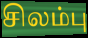
சிலம்பு